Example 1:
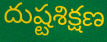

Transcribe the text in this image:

దుష్టశిక్షణ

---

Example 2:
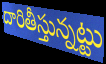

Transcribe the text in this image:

దారితీస్తున్నట్టు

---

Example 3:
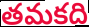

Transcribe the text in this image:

తమకది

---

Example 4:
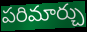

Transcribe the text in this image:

పరిమార్చు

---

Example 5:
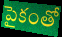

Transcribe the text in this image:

పైకంతో